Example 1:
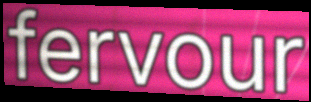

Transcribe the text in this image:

fervour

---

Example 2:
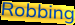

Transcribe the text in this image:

Robbing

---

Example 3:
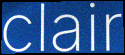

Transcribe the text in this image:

clair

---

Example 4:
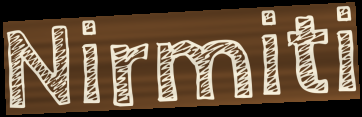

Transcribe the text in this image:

Nirmiti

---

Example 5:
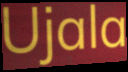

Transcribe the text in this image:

Ujala